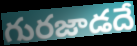
గురజాడదే